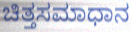
ಚಿತ್ತಸಮಾಧಾನ